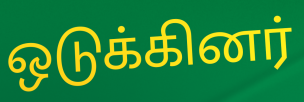
ஒடுக்கினர்